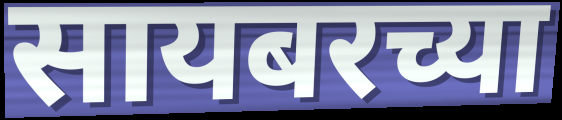
सायबरच्या